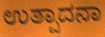
ಉತ್ಪಾದನಾ